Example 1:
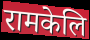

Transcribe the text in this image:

रामकेलि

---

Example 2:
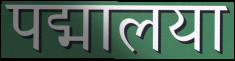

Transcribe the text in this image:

पद्मालया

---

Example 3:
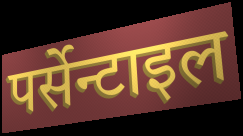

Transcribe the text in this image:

पर्सेन्टाइल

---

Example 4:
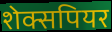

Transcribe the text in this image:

शेक्सपियर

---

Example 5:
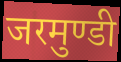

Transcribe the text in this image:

जरमुण्डी